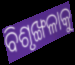
ବିଶୃଙ୍ଖଳାକୁ